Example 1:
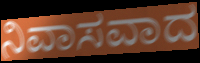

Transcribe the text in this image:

ನಿವಾಸವಾದ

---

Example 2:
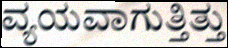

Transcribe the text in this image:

ವ್ಯಯವಾಗುತ್ತಿತ್ತು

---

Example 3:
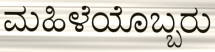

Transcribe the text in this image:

ಮಹಿಳೆಯೊಬ್ಬರು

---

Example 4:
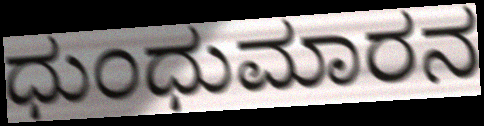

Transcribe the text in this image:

ಧುಂಧುಮಾರನ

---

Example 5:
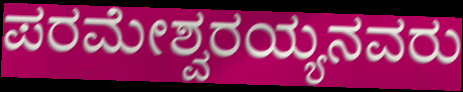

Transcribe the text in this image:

ಪರಮೇಶ್ವರಯ್ಯನವರು